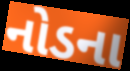
નોડના